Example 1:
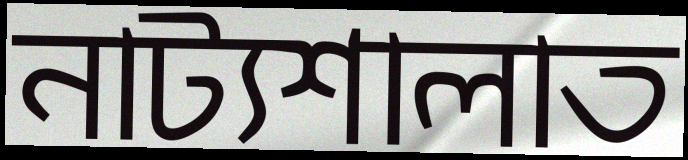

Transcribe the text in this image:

নাট্যশালাত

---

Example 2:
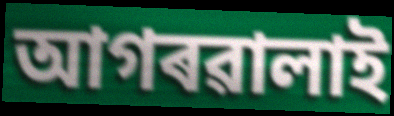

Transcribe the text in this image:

আগৰৱালাই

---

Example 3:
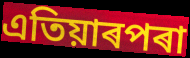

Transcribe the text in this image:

এতিয়াৰপৰা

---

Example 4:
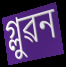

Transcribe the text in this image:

গ্লুৱন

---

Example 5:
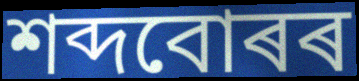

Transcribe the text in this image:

শব্দবোৰৰ